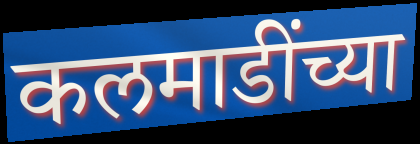
कलमाडींच्या